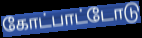
கோட்பாட்டோடு